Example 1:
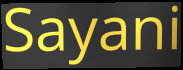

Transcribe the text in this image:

Sayani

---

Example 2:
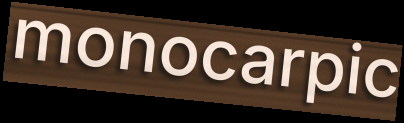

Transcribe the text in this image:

monocarpic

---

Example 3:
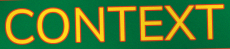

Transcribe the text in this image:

CONTEXT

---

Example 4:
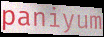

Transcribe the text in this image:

paniyum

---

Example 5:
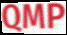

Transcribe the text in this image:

QMP